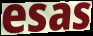
esas